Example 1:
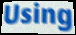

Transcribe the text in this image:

Using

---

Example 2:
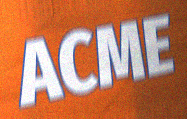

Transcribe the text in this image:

ACME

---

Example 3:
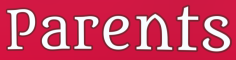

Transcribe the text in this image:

Parents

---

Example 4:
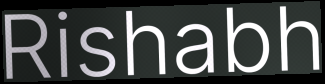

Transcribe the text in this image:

Rishabh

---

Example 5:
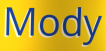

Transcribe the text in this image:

Mody